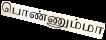
பொண்ணும்மா